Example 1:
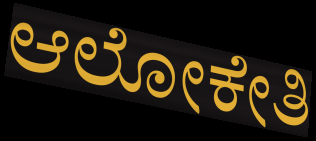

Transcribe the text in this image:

ಆಲೋಕೇತಿ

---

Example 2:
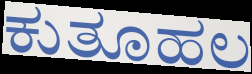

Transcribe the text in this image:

ಕುತೂಹಲ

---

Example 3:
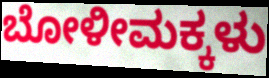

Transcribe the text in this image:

ಬೋಳೀಮಕ್ಕಳು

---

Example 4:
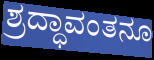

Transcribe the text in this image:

ಶ್ರದ್ಧಾವಂತನೂ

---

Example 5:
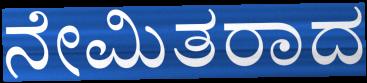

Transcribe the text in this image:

ನೇಮಿತರಾದ